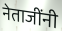
नेताजींनी